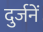
दुर्जनें